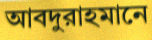
আবদুরাহমানে